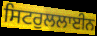
ਸਿਟਰੁਲਲਾਈਨ